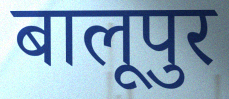
बालूपुर